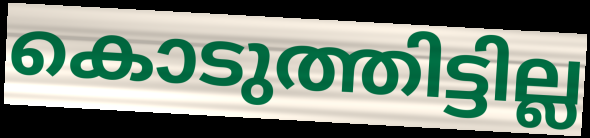
കൊടുത്തിട്ടില്ല